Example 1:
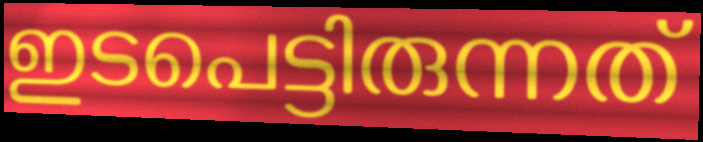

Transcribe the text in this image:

ഇടപെട്ടിരുന്നത്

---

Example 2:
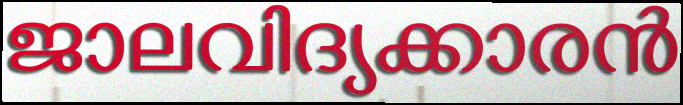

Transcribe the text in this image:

ജാലവിദ്യക്കാരൻ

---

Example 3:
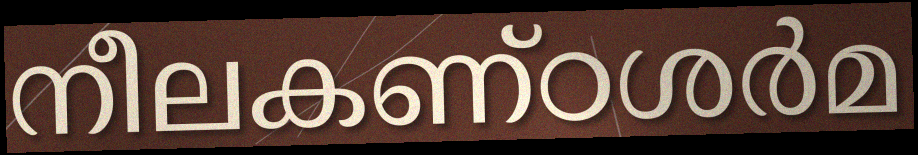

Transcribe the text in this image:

നീലകണ്ഠശർമ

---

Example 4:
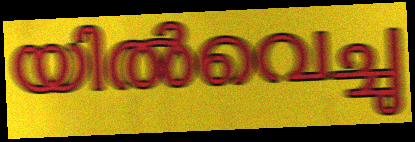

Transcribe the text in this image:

യിൽവെച്ചു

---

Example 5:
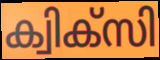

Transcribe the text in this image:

ക്വിക്സി